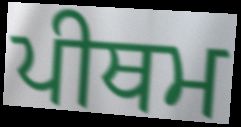
ਪੀਥਮ